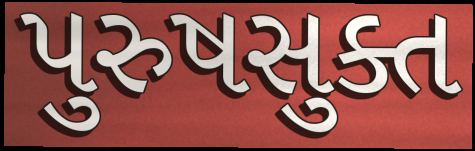
પુરુષસુક્ત